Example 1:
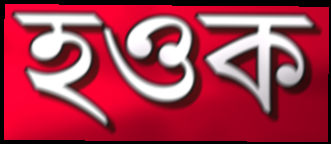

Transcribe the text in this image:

হওক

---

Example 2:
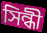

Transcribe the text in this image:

সিন্ধী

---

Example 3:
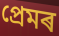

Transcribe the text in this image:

প্ৰেমৰ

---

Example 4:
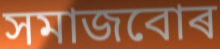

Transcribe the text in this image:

সমাজবোৰ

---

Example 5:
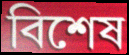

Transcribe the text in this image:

বিশেষ